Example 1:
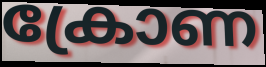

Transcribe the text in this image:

ക്രോണ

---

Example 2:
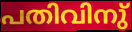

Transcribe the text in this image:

പതിവിനു്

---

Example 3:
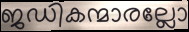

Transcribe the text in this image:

ജഡികന്മാരല്ലോ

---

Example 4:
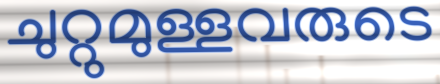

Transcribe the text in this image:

ചുറ്റുമുള്ളവരുടെ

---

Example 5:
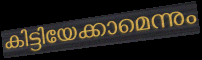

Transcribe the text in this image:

കിട്ടിയേക്കാമെന്നും